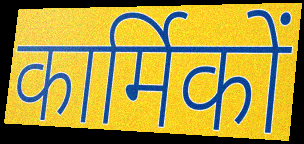
कार्मिकों